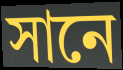
সানে